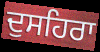
ਦੁਸਹਿਰਾ